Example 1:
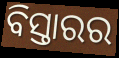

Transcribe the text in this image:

ବିସ୍ତାରର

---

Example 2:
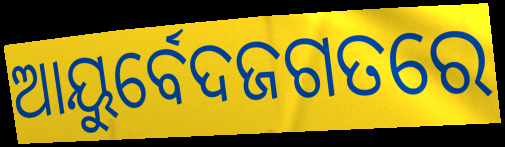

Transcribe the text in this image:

ଆୟୁର୍ବେଦଜଗତରେ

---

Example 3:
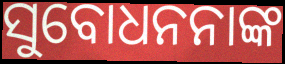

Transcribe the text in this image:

ସୁବୋଧନନାଙ୍କ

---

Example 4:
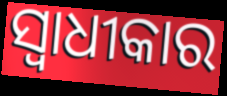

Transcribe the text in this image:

ସ୍ୱାଧୀକାର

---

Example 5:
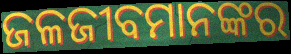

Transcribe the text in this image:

ଜଳଜୀବମାନଙ୍କର